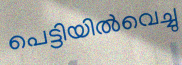
പെട്ടിയിൽവെച്ചു